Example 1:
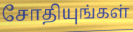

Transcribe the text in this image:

சோதியுங்கள்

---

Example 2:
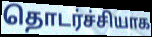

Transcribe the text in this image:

தொடர்ச்சியாக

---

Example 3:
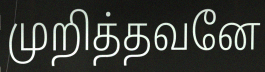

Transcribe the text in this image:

முறித்தவனே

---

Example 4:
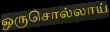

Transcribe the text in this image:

ஒருசொல்லாய்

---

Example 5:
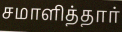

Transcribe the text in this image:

சமாளித்தார்